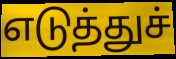
எடுத்துச்